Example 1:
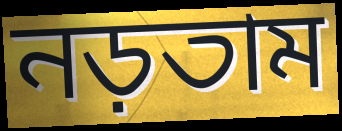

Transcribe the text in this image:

নড়তাম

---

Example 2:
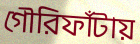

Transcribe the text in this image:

গৌরিফাঁটায়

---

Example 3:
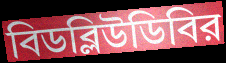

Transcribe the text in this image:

বিডব্লিউডিবির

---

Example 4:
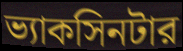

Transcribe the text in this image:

ভ্যাকসিনটার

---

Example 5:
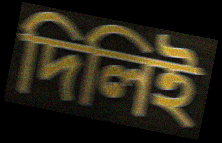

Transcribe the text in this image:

দিলিই